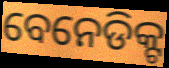
ବେନେଡିକ୍ଟ